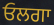
ਓਲਗਾ